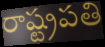
రాష్ట్రపతి